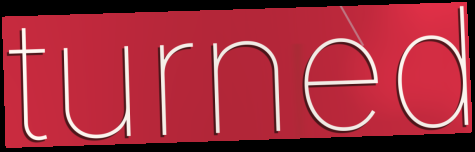
turned